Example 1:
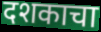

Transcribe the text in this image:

दशकाचा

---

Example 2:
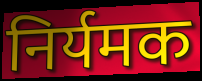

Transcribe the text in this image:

निर्यमक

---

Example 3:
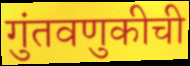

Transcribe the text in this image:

गुंतवणुकीची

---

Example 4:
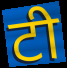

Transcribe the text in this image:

टी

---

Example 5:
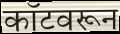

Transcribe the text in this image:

कॉटवरून